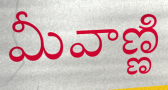
మీవాణ్ణి